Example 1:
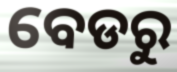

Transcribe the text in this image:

ବେଡରୁ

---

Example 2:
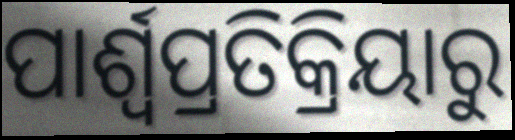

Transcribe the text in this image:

ପାର୍ଶ୍ୱପ୍ରତିକ୍ରିୟାରୁ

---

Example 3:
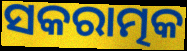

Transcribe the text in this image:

ସକରାତ୍ମକ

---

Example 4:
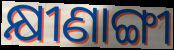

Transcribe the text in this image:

କ୍ଷୀଣାଙ୍ଗୀ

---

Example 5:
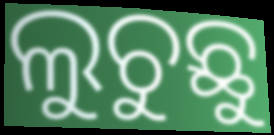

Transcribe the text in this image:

ଲୁଚୁଛୁ